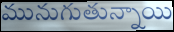
మునుగుతున్నాయి